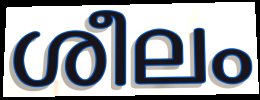
ശീലം